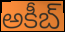
అకీబ్